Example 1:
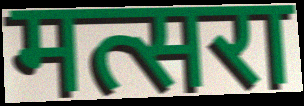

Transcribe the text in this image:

मत्सरा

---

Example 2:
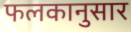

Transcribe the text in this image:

फलकानुसार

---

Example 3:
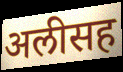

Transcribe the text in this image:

अलीसह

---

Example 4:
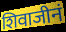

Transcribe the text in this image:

शिवाजीनं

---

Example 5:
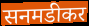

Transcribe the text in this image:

सनमडीकर